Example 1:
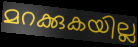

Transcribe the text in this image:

മറക്കുകയില്ല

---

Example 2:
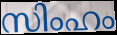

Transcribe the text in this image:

സിംഹം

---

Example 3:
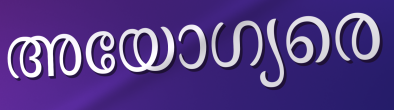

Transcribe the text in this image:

അയോഗ്യരെ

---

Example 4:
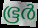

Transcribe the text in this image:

ഭൂർ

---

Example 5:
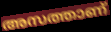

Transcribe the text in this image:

അസത്താണ്